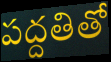
పద్దతితో